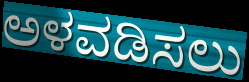
ಅಳವಡಿಸಲು